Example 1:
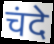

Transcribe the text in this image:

चंदे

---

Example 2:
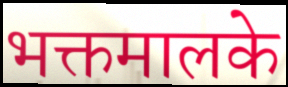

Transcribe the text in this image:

भक्तमालके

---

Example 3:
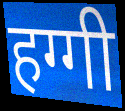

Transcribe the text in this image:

हग्गी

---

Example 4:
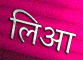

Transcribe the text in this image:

लिआ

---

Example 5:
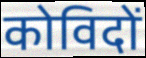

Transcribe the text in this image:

कोविदों